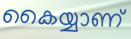
കൈയ്യാണ്